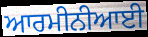
ਆਰਮੀਨੀਆਈ